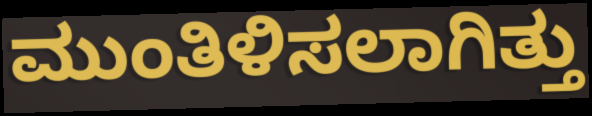
ಮುಂತಿಳಿಸಲಾಗಿತ್ತು